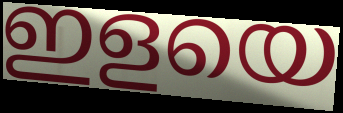
ഇളയെ